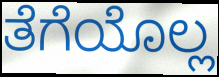
ತೆಗೆಯೊಲ್ಲ